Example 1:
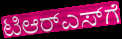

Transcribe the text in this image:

ಟಿಆರ್‌ಎಸ್‌ಗೆ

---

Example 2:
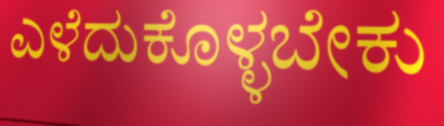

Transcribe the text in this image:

ಎಳೆದುಕೊಳ್ಳಬೇಕು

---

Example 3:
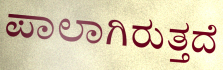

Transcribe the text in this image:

ಪಾಲಾಗಿರುತ್ತದೆ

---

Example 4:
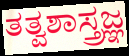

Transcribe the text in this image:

ತತ್ವಶಾಸ್ತ್ರಜ್ಞ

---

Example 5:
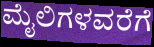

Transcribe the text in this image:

ಮೈಲಿಗಳವರೆಗೆ